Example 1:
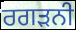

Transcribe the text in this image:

ਰਗੜਨੀ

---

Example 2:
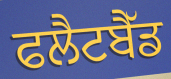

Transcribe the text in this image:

ਫਲੈਟਬੈੱਡ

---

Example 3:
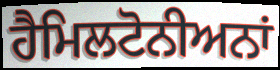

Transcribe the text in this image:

ਹੈਮਿਲਟੋਨੀਅਨਾਂ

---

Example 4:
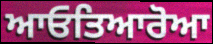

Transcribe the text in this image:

ਆਓਤਿਆਰੋਆ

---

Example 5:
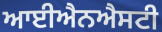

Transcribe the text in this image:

ਆਈਐਨਐਸਟੀ